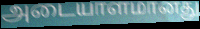
அடையாளமானது